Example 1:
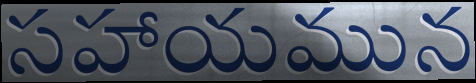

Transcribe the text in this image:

సహాయమున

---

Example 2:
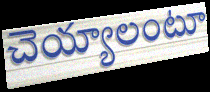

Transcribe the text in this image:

చెయ్యాలంటూ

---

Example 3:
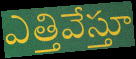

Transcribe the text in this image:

ఎత్తివేస్తూ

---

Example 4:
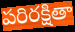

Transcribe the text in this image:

పరిరక్షితా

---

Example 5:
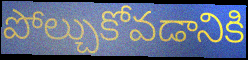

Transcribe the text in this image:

పోల్చుకోవడానికి